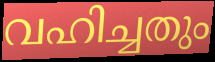
വഹിച്ചതും